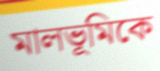
মালভূমিকে